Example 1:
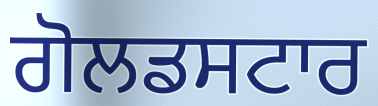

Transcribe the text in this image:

ਗੋਲਡਸਟਾਰ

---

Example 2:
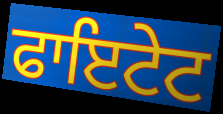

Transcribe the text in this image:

ਫਾਇਟੇਟ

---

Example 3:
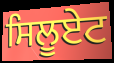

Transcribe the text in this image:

ਸਿਲੂਏਟ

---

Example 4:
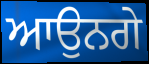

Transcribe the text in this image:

ਆਉਨਗੇ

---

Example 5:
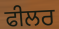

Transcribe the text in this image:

ਫੀਲਰ